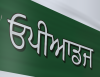
ਓਪੀਆਡਜ